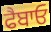
ਫੈਬਾਓ